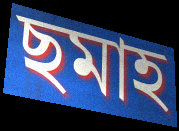
ছমাহ